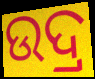
ଉଦ୍ର